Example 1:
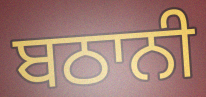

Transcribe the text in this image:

ਬਠਾਨੀ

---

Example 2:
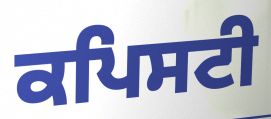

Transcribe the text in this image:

ਕਪਿਸਟੀ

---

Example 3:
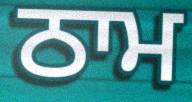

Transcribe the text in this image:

ਠਾਮ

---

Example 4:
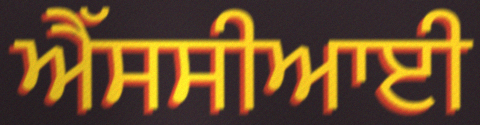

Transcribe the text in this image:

ਐੱਸਸੀਆਈ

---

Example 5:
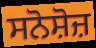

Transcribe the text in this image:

ਸਨੋਸ਼ੋਜ਼